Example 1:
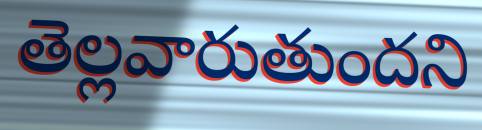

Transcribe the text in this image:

తెల్లవారుతుందని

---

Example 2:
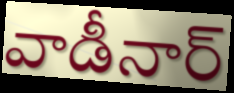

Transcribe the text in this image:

వాడీనార్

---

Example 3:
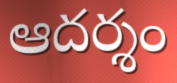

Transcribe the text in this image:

ఆదర్శం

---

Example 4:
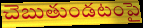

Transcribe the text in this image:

చెబుతుండటంపై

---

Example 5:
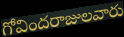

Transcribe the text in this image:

గోవిందరాజులవారు